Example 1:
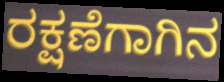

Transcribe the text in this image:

ರಕ್ಷಣೆಗಾಗಿನ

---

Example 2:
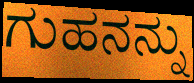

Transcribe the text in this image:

ಗುಹನನ್ನು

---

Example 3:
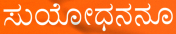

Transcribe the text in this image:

ಸುಯೋಧನನೂ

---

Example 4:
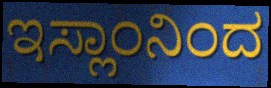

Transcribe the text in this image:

ಇಸ್ಲಾಂನಿಂದ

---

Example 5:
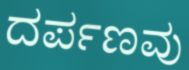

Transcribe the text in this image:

ದರ್ಪಣವು